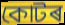
কোটৰ